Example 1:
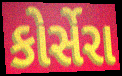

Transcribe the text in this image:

કોર્સેરા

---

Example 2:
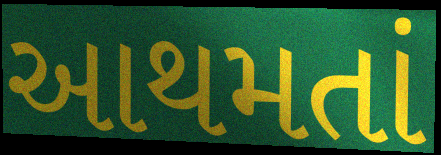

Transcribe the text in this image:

આથમતાં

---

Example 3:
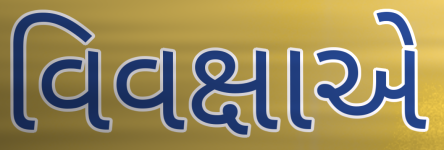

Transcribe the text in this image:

વિવક્ષાએ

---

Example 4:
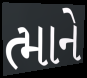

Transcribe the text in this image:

ત્માને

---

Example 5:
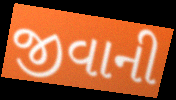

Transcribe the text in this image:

જીવાની